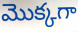
మొక్కగా